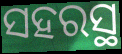
ସହରସ୍ଥ